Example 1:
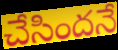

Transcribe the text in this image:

చేసిందనే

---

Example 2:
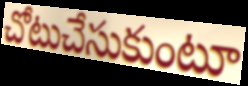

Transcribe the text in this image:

చోటుచేసుకుంటూ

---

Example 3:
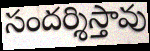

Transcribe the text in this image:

సందర్శిస్తావు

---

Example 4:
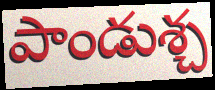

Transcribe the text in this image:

పాండుశ్చ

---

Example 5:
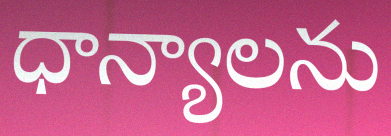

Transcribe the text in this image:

ధాన్యాలను